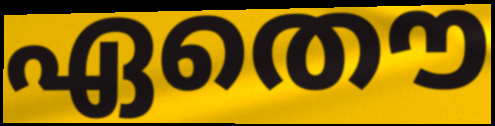
ഏതൌ